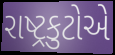
રાષ્ટ્રકુટોએ